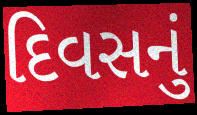
દિવસનું